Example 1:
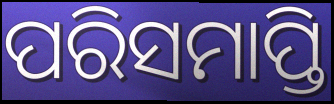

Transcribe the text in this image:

ପରିସମାପ୍ତି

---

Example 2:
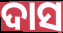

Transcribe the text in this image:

ଦାସ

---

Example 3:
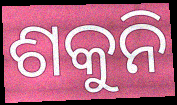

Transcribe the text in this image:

ଶକୁନି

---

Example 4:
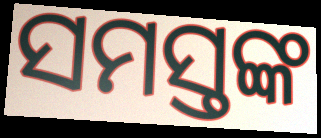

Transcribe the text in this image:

ସମସ୍ତଙ୍କ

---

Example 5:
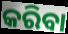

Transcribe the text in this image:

କରିବା